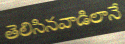
తెలిసినవాడిలానే